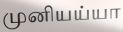
முனியய்யா